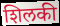
शिलकी